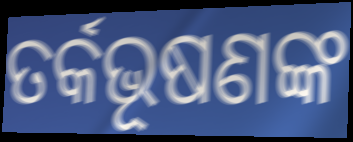
ତର୍କଭୂଷଣଙ୍କ